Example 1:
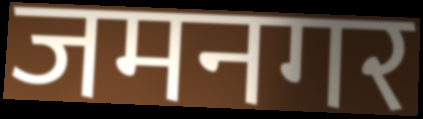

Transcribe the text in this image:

जमनगर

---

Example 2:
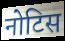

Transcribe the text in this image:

नोटिस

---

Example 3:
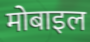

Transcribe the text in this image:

मोबाइल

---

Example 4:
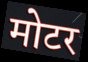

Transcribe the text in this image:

मोटर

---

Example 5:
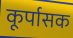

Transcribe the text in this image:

कूर्पासक